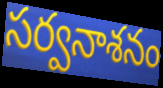
సర్వనాశనం